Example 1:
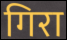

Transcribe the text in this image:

गिरा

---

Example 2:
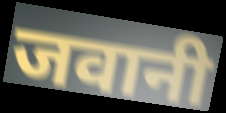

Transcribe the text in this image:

जवानी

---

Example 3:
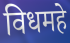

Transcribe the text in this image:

विधमहे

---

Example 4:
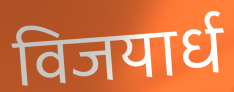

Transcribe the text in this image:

विजयार्ध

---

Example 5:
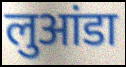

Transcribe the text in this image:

लुआंडा